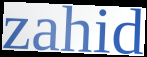
zahid